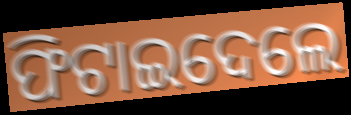
ଫିଟାଇଦେଲେ